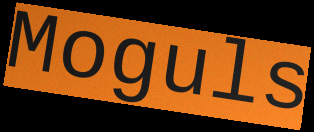
Moguls